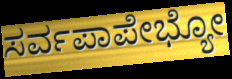
ಸರ್ವಪಾಪೇಭ್ಯೋ